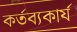
কর্তব্যকার্য